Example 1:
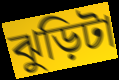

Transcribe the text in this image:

ঝুড়িটা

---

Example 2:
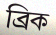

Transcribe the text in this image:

ব্রিক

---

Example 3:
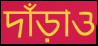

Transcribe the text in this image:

দাঁড়াও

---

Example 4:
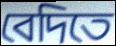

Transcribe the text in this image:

বেদিতে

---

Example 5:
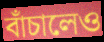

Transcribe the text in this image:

বাঁচালেও